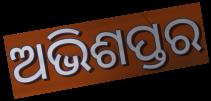
ଅଭିଶପ୍ତର